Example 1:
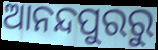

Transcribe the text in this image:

ଆନନ୍ଦପୁରରୁ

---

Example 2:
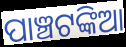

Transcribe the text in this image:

ପାଞ୍ଚଟଙ୍କିଆ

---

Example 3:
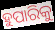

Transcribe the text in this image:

ହୁପାରିକୁ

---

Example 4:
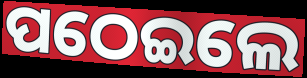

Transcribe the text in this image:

ପଠେଇଲେ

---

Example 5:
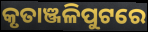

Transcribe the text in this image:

କୃତାଞ୍ଜଳିପୁଟରେ